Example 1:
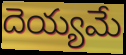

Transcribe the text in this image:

దెయ్యమే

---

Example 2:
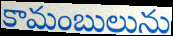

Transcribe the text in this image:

కామంబులును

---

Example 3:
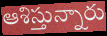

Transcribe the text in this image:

ఆశిస్తున్నారు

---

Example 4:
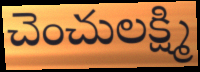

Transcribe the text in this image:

చెంచులక్ష్మి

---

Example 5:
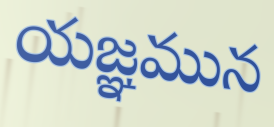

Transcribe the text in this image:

యజ్ఞమున